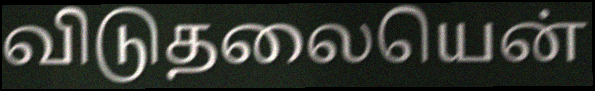
விடுதலையென்